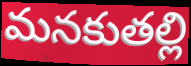
మనకుతల్లి